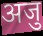
अजु